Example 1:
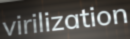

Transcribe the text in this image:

virilization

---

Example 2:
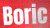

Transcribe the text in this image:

Boric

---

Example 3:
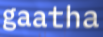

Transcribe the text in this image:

gaatha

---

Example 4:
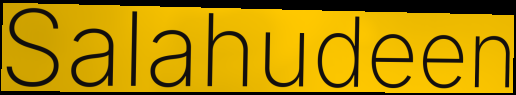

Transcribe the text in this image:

Salahudeen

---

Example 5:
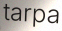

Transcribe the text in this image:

tarpa